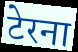
टेरना